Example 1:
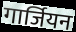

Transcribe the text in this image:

गार्जियन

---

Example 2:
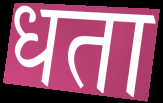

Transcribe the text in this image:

धता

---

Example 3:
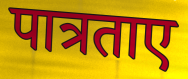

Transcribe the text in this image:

पात्रताए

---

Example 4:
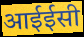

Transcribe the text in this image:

आईईसी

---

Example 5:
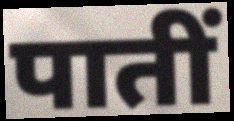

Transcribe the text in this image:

पातीं